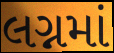
લગ્નમાં